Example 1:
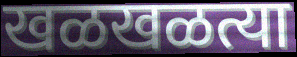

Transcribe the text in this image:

खळखळत्या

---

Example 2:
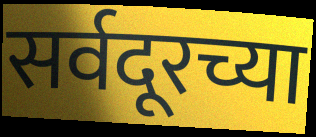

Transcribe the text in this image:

सर्वदूरच्या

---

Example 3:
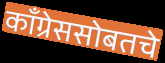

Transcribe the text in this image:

काँग्रेससोबतचे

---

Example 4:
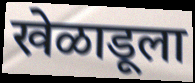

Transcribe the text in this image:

खेळाडूला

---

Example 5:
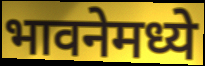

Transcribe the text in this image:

भावनेमध्ये